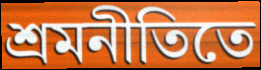
শ্রমনীতিতে